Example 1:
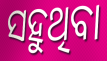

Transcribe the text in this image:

ସହୁଥିବା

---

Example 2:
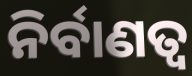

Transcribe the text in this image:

ନିର୍ବାଣତ୍ୱ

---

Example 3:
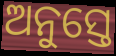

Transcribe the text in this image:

ଅନୁସ୍ତେ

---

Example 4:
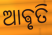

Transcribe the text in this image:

ଆଵୃତି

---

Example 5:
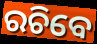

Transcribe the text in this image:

ରଚିବେ